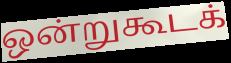
ஒன்றுகூடக்